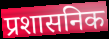
प्रशासनिक